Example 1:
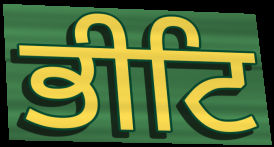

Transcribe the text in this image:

ਭੀਟਿ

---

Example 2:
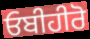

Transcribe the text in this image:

ਓਬੀਹੀਰੋ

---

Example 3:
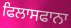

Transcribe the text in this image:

ਫਿਲਾਸਫਾਨਾ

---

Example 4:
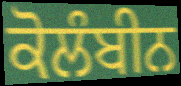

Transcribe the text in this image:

ਕੋਲੰਬੀਨ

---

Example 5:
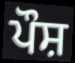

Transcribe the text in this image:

ਪੌਸ਼